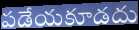
పడేయకూడదు